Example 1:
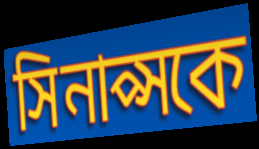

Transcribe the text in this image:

সিনাপ্সকে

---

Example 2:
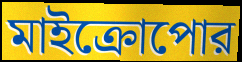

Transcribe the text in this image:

মাইক্রোপোর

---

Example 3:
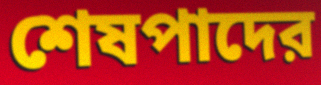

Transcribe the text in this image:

শেষপাদের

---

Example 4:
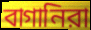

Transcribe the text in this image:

বাগানিরা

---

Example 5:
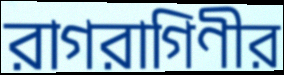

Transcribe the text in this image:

রাগরাগিণীর